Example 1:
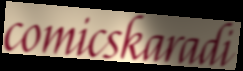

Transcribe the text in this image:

comicskaradi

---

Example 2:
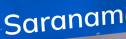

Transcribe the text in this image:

Saranam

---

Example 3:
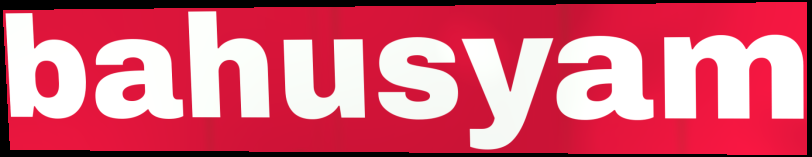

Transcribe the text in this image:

bahusyam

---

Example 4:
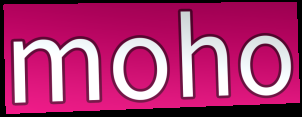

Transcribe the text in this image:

moho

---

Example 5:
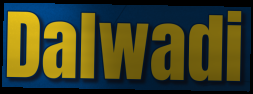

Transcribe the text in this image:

Dalwadi